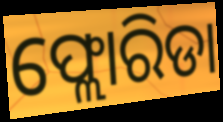
ଫ୍ଲୋରିଡା